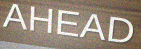
AHEAD